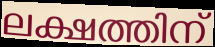
ലക്ഷത്തിന്